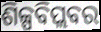
ଶିଳ୍ପବିପ୍ଲବର